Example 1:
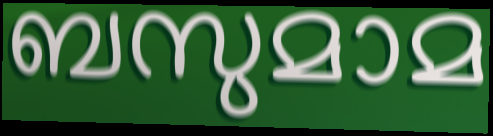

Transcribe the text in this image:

ബസുമാമ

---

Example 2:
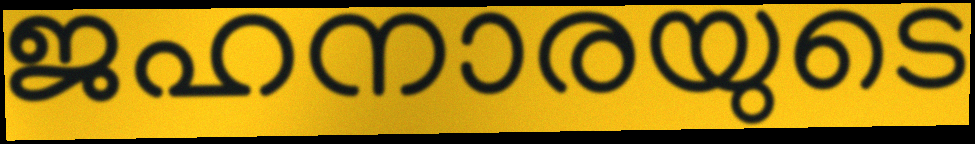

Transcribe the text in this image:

ജഹനാരയുടെ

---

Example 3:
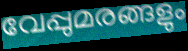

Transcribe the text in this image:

വേപ്പുമരങ്ങളും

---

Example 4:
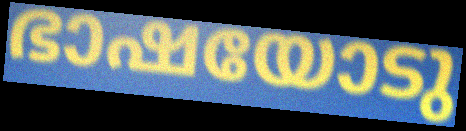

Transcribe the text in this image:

ഭാഷയോടു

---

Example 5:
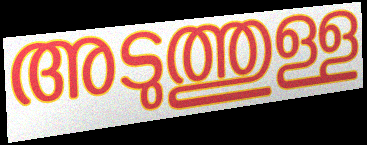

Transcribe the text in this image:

അടുത്തുള്ള